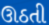
ઊઠતી